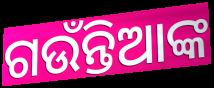
ଗଉଁନ୍ତିଆଙ୍କ